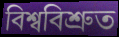
বিশ্ববিশ্ৰুত